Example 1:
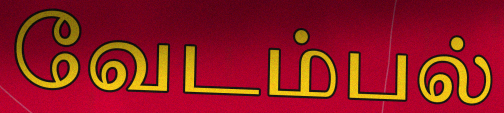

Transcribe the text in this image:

வேடம்பல்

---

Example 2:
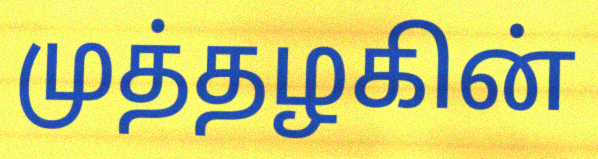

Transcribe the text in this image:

முத்தழகின்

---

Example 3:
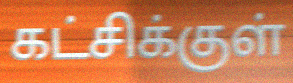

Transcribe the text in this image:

கட்சிக்குள்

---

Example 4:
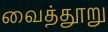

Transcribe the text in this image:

வைத்தூறு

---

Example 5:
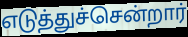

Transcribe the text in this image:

எடுத்துச்சென்றார்